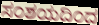
ಸಂಶಯದಿಂದ